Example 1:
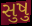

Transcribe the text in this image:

સુષુ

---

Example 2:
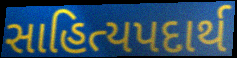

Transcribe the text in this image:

સાહિત્યપદાર્થ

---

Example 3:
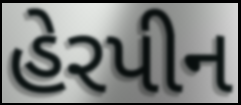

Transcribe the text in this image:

હેરપીન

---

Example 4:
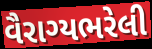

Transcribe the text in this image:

વૈરાગ્યભરેલી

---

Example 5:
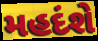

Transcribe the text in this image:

મહદંશે